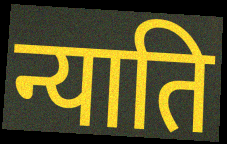
न्याति